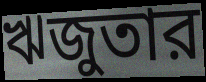
ঋজুতার